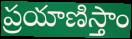
ప్రయాణిస్తాం